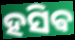
ହସିଵ